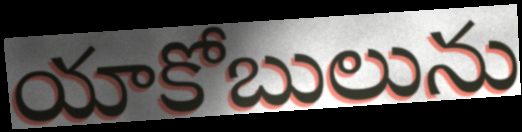
యాకోబులును